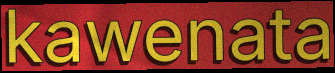
kawenata